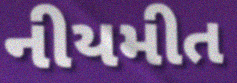
નીયમીત